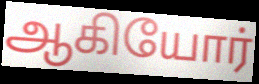
ஆகியோர்